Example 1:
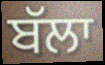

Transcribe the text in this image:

ਬੱਲਾ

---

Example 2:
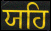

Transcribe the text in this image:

ਯਹਿ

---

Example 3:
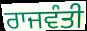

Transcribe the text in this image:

ਰਾਜਵੰਤੀ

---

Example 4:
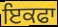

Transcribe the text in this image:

ਇਕਫਾ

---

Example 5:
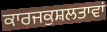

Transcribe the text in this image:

ਕਾਰਜਕੁਸ਼ਲਤਾਵਾਂ